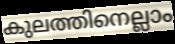
കുലത്തിനെല്ലാം